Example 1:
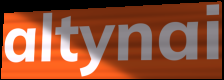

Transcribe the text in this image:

altynai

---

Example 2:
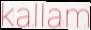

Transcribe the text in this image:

kallam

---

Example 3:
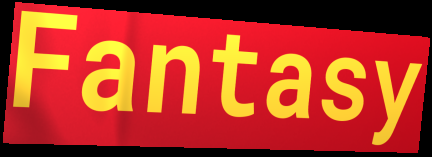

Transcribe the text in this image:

Fantasy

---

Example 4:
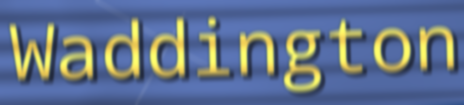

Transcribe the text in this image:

Waddington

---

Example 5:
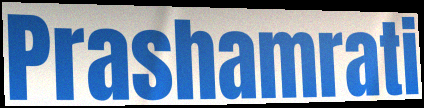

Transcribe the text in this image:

Prashamrati